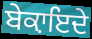
ਬੇਕ਼ਾਇਦੇ